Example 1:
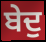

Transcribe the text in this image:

ਬੇਦੁ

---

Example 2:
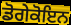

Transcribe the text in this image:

ਡੋਗੇਕੋਇਨ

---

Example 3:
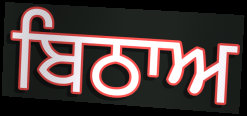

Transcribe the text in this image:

ਬਿਠਾਅ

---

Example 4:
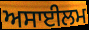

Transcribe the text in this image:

ਅਸਾਈਲਮ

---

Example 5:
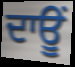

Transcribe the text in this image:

ਦਾਊਂ